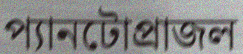
প্যানটোপ্রাজল